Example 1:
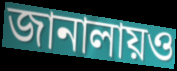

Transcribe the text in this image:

জানালায়ও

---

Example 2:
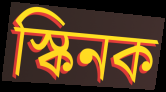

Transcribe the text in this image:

স্কিনক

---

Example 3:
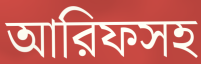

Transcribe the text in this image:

আরিফসহ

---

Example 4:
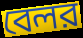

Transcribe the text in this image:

বেলর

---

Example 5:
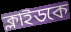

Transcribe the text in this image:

ক্লাইডকে